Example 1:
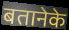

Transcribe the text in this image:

बतानेके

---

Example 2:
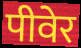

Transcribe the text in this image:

पीवेर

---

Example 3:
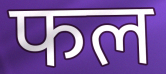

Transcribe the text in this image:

फल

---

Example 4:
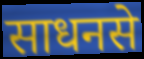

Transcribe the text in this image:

साधनसे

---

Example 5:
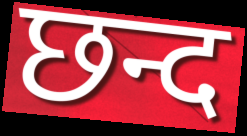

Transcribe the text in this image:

छन्द